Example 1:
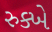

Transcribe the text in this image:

રુક્ખે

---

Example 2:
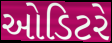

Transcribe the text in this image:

ઓડિટરે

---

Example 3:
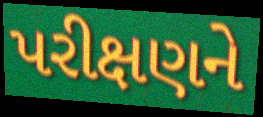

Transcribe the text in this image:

પરીક્ષણને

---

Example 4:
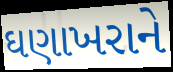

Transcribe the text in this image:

ઘણાખરાને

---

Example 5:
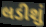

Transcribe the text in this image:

લડીશું